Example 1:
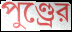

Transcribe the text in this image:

পুণ্ড্রের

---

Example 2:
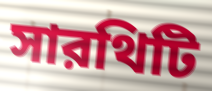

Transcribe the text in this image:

সারথিটি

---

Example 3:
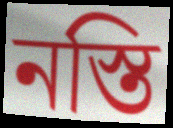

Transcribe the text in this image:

নস্তি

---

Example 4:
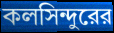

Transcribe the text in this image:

কলসিন্দুরের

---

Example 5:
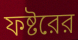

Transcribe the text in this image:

ফষ্টরের